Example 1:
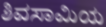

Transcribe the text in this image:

ಶಿವಸಾಮಿಯ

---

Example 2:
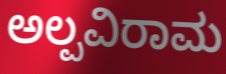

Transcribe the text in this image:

ಅಲ್ಪವಿರಾಮ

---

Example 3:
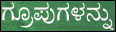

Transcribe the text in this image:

ಗ್ರೂಪುಗಳನ್ನು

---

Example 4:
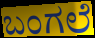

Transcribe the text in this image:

ಬಂಗಲೆ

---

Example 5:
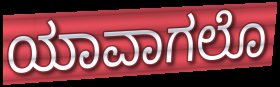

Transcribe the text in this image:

ಯಾವಾಗಲೊ